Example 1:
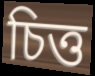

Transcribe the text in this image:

চিত্ত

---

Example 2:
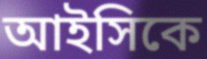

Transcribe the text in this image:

আইসিকে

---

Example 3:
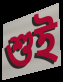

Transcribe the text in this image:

শুই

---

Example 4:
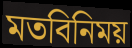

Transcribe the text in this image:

মতবিনিময়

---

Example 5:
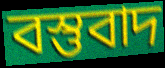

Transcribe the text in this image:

বস্তুবাদ